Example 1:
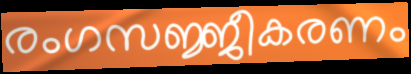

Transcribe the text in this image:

രംഗസജ്ജീകരണം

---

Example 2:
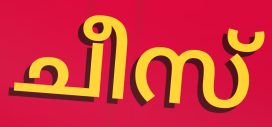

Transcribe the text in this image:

ചീസ്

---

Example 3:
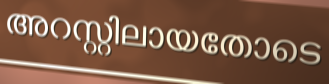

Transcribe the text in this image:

അറസ്റ്റിലായതോടെ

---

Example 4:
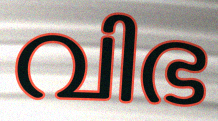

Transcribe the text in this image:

വിഭ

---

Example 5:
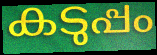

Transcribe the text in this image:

കടുപ്പം